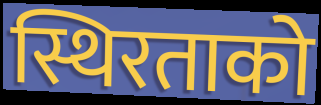
स्थिरताको